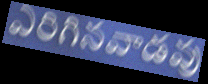
ఎరిగినవాడవు